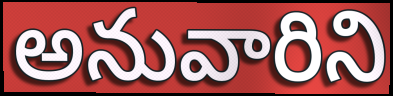
అనువారిని